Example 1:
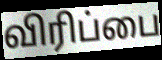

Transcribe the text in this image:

விரிப்பை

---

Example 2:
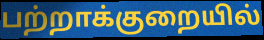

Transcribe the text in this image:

பற்றாக்குறையில்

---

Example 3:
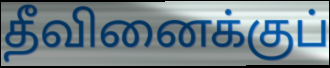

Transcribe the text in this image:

தீவினைக்குப்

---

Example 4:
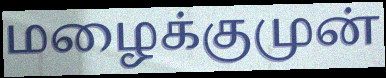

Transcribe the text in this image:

மழைக்குமுன்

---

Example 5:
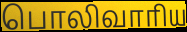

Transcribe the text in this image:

பொலிவாரிய